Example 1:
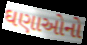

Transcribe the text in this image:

ઘણાઓનો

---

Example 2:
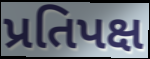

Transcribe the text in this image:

પ્રતિપક્ષ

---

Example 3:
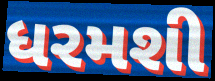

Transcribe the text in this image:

ધરમશી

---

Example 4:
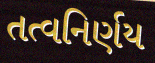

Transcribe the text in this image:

તત્વનિર્ણય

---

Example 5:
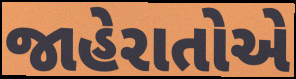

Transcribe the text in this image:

જાહેરાતોએ